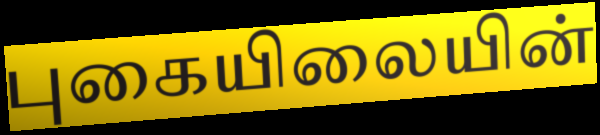
புகையிலையின்